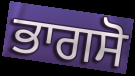
ਭਾਗਸੋ